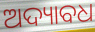
ଅଦ୍ୟାବଧ